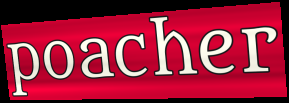
poacher